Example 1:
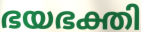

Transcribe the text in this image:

ഭയഭക്തി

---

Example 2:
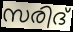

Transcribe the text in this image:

സരിദ്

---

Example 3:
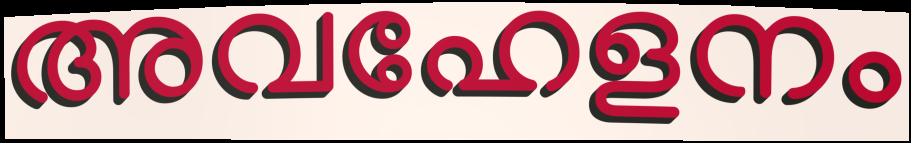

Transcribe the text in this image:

അവഹേളനം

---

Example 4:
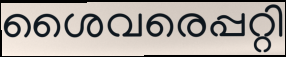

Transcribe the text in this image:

ശൈവരെപ്പറ്റി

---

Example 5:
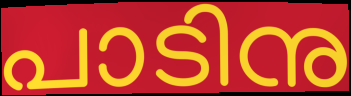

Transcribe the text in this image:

പാടിനു